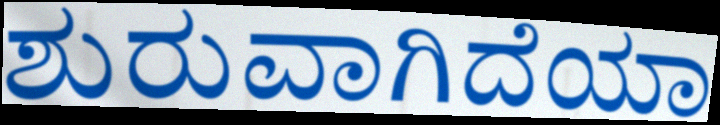
ಶುರುವಾಗಿದೆಯಾ